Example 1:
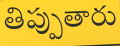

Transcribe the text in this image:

తిప్పుతారు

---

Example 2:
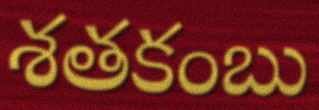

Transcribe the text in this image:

శతకంబు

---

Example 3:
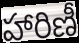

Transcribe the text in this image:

హారిణీ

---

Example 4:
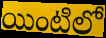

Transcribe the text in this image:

యింటిలో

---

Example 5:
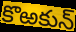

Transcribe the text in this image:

కొఱకున్